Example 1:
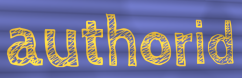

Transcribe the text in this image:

authorid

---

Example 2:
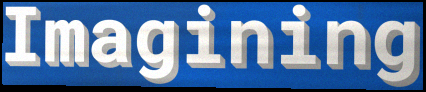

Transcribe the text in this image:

Imagining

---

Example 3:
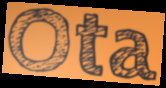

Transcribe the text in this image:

Ota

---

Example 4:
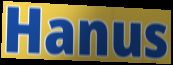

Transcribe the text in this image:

Hanus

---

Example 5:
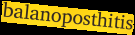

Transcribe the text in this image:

balanoposthitis